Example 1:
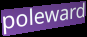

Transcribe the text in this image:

poleward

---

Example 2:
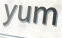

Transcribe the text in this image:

yum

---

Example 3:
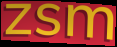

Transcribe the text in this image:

zsm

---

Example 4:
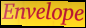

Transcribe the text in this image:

Envelope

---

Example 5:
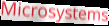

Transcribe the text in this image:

Microsystems